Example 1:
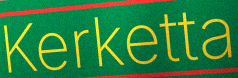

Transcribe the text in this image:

Kerketta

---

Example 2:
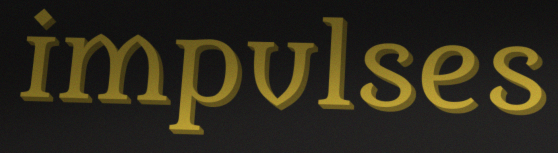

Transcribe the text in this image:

impulses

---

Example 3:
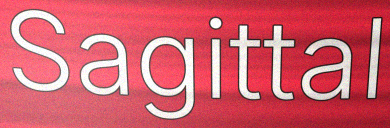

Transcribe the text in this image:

Sagittal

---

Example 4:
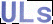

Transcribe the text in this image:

ULs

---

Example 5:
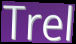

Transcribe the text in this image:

Trel